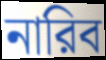
নারিব